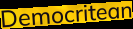
Democritean